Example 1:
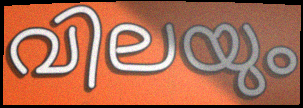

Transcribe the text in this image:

വിലയും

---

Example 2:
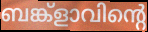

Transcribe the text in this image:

ബങ്ക്ളാവിന്റെ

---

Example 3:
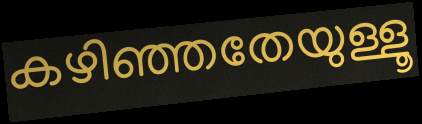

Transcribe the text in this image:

കഴിഞ്ഞതേയുള്ളൂ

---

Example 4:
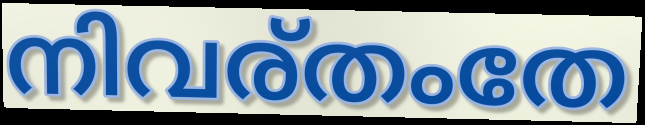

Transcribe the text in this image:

നിവര്തംതേ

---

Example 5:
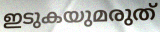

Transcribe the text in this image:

ഇടുകയുമരുത്